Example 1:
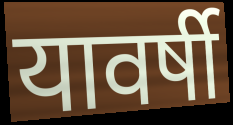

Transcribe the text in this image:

यावर्षी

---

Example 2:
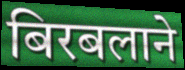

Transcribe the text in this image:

बिरबलाने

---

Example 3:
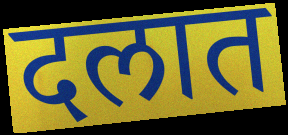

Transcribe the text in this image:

दलात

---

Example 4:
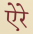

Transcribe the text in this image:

ऐरे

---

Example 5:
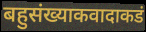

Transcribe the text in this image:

बहुसंख्याकवादाकडं